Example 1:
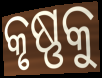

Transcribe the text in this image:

କୃଷ୍ଣକୁ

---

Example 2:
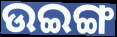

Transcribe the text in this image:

ଉଇଙ୍ଗ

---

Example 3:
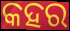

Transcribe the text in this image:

କହର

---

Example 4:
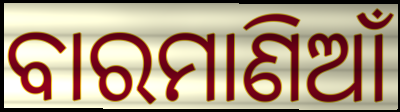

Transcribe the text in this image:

ବାରମାଣିଆଁ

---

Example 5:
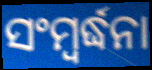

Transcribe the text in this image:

ସଂମ୍ବର୍ଦ୍ଧନା